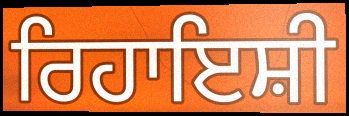
ਰਿਹਾਇਸ਼ੀ